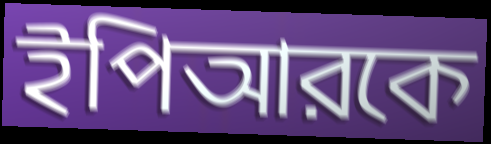
ইপিআরকে